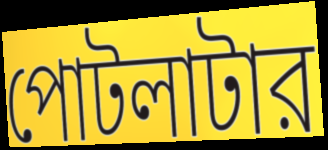
পোটলাটার